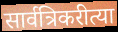
सार्वत्रिकरीत्या